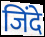
जिंदे